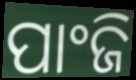
ପାଂଜି